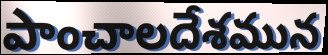
పాంచాలదేశమున